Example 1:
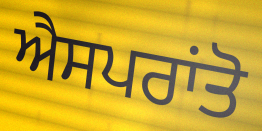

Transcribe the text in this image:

ਐਸਪਰਾਂਤੋ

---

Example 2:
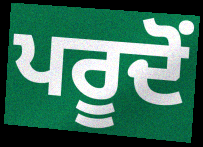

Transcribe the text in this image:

ਪਰੂਦੋਂ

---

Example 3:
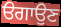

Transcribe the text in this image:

ੳਗਾਉਣ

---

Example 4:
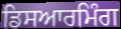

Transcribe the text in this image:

ਡਿਸਆਰਮਿੰਗ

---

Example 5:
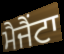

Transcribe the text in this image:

ਮੈਜੈਂਟਾ